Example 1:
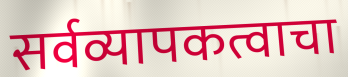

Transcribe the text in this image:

सर्वव्यापकत्वाचा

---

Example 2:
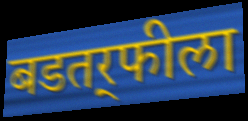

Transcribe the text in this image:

बडतर्फीला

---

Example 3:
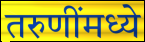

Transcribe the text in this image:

तरुणींमध्ये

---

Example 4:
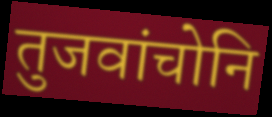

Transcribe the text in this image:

तुजवांचोनि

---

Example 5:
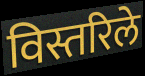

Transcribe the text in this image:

विस्तरिले